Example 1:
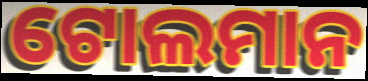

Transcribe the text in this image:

ଟୋଲମାନ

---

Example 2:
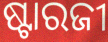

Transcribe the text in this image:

ଷ୍ଟାରଜୀ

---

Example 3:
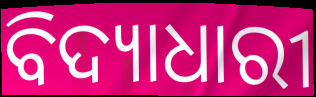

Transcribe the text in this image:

ବିଦ୍ୟାଧାରୀ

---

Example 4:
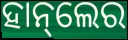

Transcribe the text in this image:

ହାନ୍‌ଲେର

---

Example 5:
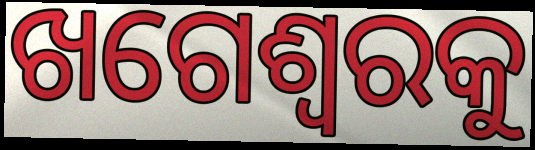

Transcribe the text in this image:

ଖଗେଶ୍ୱରକୁ